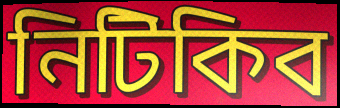
নিটিকিব